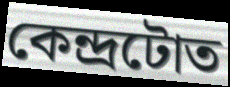
কেন্দ্ৰটোত